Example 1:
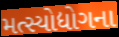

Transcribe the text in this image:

મત્સ્યોદ્યોગના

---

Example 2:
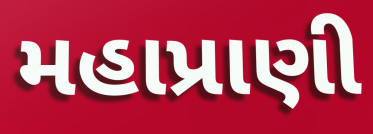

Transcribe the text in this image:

મહાપ્રાણી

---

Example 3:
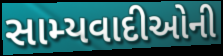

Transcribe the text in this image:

સામ્યવાદીઓની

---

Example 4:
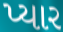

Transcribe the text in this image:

પ્યાર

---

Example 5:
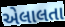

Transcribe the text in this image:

એલાલતા